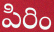
పిరిం